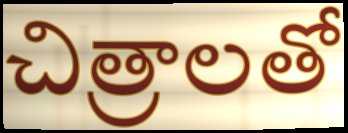
చిత్రాలతో